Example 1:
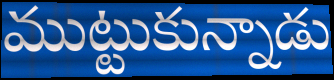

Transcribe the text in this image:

ముట్టుకున్నాడు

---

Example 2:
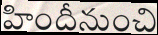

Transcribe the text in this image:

హిందీనుంచి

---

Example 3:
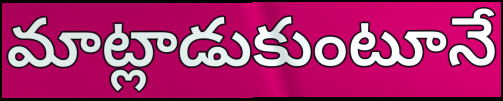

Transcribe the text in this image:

మాట్లాడుకుంటూనే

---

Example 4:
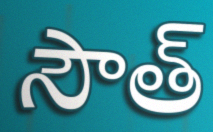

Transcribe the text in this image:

సౌత్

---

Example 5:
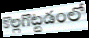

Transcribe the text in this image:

కొల్లగొట్టడంలో